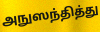
அநுஸந்தித்து